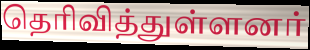
தெரிவித்துள்ளனர்